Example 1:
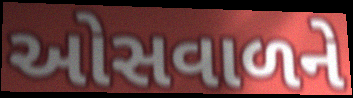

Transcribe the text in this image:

ઓસવાળને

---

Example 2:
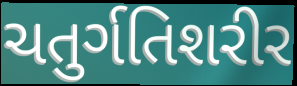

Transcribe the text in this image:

ચતુર્ગતિશરીર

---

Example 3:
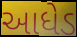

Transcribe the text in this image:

આધેડ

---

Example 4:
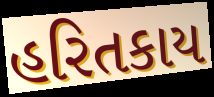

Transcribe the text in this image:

હરિતકાય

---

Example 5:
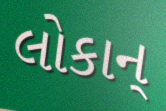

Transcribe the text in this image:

લોકાન્